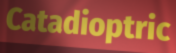
Catadioptric